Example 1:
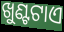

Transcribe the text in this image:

ଖୁଣ୍ଟଟାଏ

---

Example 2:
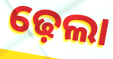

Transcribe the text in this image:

ଢ଼େଲା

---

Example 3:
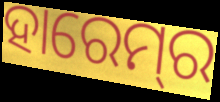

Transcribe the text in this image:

ହାରେମ୍‍ର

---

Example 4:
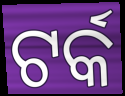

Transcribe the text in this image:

ଟର୍କ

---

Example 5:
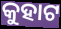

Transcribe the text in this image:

କୁହାଟ